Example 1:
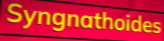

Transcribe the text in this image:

Syngnathoides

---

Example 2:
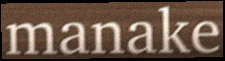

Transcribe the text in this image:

manake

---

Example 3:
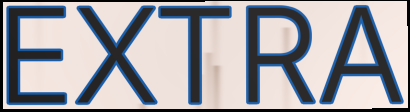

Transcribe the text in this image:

EXTRA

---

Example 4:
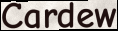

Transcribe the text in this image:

Cardew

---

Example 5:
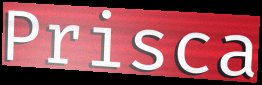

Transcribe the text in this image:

Prisca